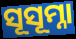
ସୂସୂମ୍ନା